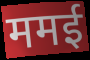
ममई